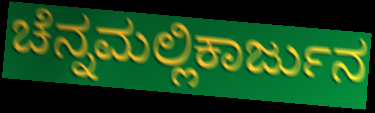
ಚೆನ್ನಮಲ್ಲಿಕಾರ್ಜುನ